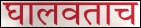
घालवताच